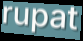
rupat